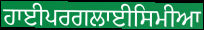
ਹਾਈਪਰਗਲਾਈਸਿਮੀਆ